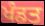
ਖੰਡਤ